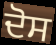
ਦੋਸ